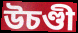
উচণ্ডী